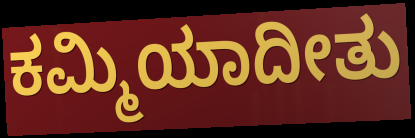
ಕಮ್ಮಿಯಾದೀತು